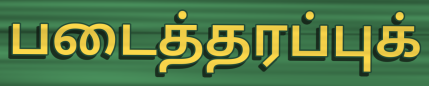
படைத்தரப்புக்